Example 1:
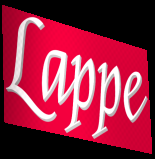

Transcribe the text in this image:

Lappe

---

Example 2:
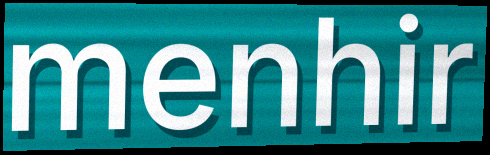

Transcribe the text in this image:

menhir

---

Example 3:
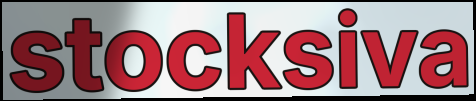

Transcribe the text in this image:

stocksiva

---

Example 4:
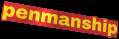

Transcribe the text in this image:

penmanship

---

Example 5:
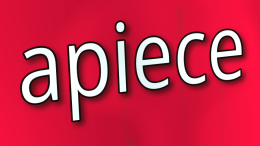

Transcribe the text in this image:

apiece